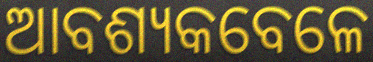
ଆବଶ୍ୟକବେଳେ